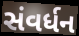
સંવર્ધન